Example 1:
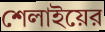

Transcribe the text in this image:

শেলাইয়ের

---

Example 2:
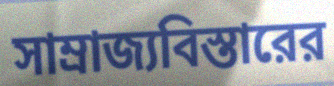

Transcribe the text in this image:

সাম্রাজ্যবিস্তারের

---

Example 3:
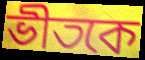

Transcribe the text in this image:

ভীতকে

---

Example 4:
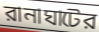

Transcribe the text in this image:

রানাঘাটের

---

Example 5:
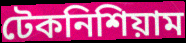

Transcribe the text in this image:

টেকনিশিয়াম